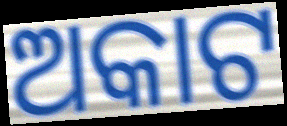
ଅକାଟ